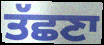
ਤੱਛਣਾ